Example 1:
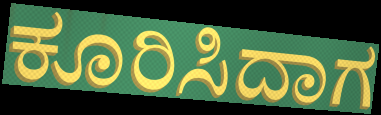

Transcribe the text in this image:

ಕೂರಿಸಿದಾಗ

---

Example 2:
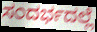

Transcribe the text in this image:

ಸಂದರ್ಭದಲ್ಲೆ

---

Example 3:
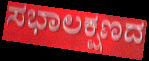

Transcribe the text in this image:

ಸಭಾಲಕ್ಷಣದ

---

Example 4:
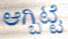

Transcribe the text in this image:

ಆಗ್ಬಿಟ್ಟೆ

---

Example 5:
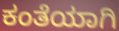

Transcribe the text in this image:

ಕಂತೆಯಾಗಿ